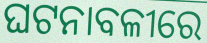
ଘଟନାବଳୀରେ